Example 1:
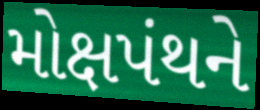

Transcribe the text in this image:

મોક્ષપંથને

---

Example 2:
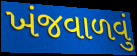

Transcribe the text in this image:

ખંજવાળવું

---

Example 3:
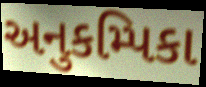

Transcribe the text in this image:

અનુકમ્પિકા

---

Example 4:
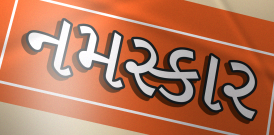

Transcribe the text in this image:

નમસ્કાર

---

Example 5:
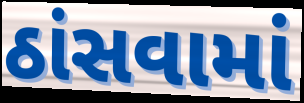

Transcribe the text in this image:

ઠાંસવામાં